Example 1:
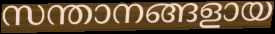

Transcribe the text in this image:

സന്താനങ്ങളായ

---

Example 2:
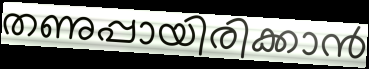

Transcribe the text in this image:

തണുപ്പായിരിക്കാൻ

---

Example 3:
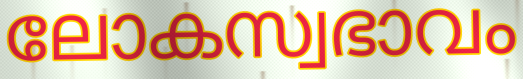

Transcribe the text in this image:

ലോകസ്വഭാവം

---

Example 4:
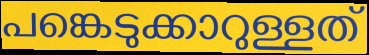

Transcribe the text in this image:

പങ്കെടുക്കാറുള്ളത്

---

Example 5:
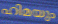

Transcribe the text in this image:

ഹിമയും